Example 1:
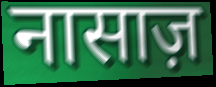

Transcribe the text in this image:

नासाज़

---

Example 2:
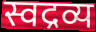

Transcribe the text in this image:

स्वद्रव्य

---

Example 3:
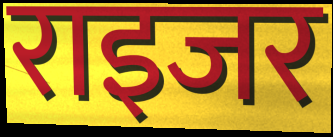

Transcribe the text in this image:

राइजर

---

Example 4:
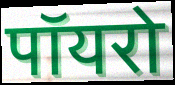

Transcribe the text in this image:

पॉयरो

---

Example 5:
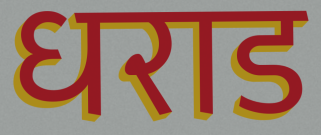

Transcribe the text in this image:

धराड